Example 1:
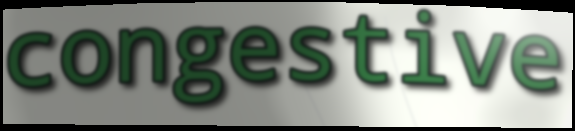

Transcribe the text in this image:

congestive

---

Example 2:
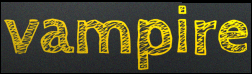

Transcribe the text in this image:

vampire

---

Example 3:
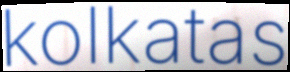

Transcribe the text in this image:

kolkatas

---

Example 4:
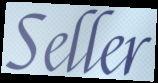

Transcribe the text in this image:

Seller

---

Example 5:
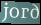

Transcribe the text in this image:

jord